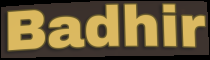
Badhir